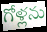
గోళ్లను